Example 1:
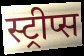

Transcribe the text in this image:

स्ट्रीप्स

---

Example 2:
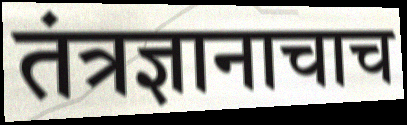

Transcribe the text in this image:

तंत्रज्ञानाचाच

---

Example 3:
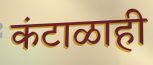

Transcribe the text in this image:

कंटाळाही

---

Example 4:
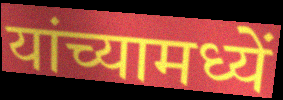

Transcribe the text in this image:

यांच्यामध्यें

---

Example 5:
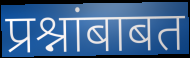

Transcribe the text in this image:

प्रश्नांबाबत